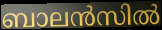
ബാലൻസിൽ